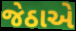
જેઠાએ